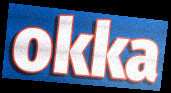
okka